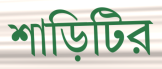
শাড়িটির